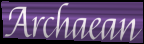
Archaean